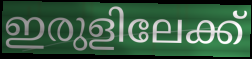
ഇരുളിലേക്ക്